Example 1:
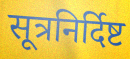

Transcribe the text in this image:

सूत्रनिर्दिष्ट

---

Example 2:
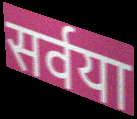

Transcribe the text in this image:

सर्वया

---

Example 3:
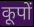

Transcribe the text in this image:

कूपों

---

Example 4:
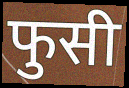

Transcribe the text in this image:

फुसी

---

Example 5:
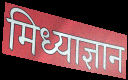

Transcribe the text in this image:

मिध्याज्ञान